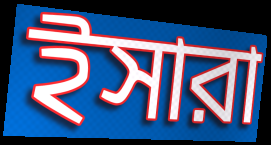
ইসারা